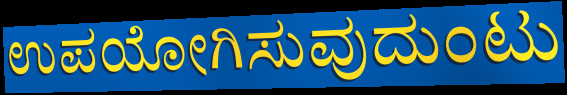
ಉಪಯೋಗಿಸುವುದುಂಟು